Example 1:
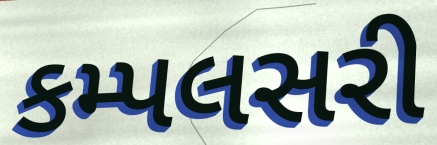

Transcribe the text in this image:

કમ્પલસરી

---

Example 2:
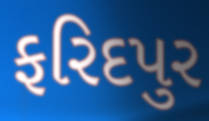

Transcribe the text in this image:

ફરિદપુર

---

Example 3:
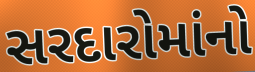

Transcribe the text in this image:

સરદારોમાંનો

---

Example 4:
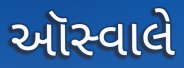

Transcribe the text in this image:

ઑસ્વાલે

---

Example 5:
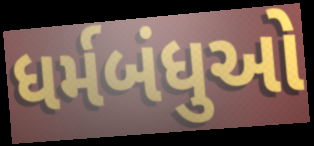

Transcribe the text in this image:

ધર્મબંધુઓ